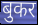
बुकर